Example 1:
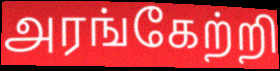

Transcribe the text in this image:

அரங்கேற்றி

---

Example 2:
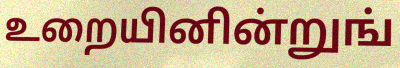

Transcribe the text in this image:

உறையினின்றுங்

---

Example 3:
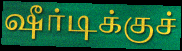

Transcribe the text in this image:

ஷீர்டிக்குச்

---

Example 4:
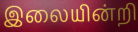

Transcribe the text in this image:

இலையின்றி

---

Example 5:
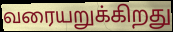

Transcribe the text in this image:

வரையறுக்கிறது